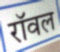
रॉवल